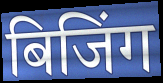
बिजिंग